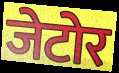
जेटोर